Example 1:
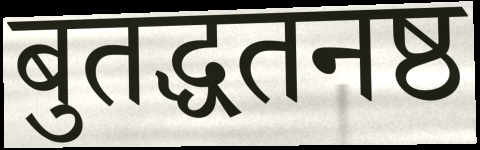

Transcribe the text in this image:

बुतद्धतनष्ठ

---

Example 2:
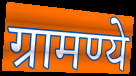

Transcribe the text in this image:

ग्रामण्ये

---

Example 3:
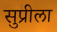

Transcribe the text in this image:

सुप्रीला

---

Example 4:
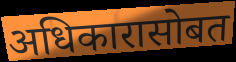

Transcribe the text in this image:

अधिकारासोबत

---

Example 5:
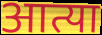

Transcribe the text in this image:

आत्या